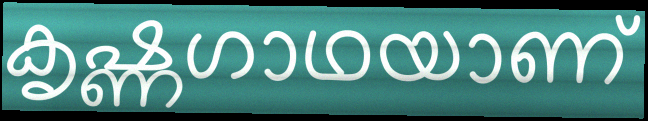
കൃഷ്ണഗാഥയാണ്